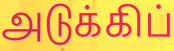
அடுக்கிப்